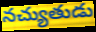
నచ్యుతుడు